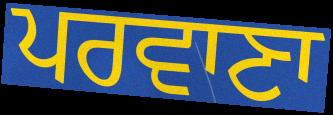
ਪਰਵਾਣਾ